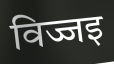
विज्जइ